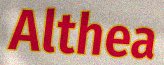
Althea